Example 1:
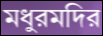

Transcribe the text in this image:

মধুরমদির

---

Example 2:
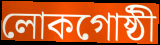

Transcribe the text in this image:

লোকগোষ্ঠী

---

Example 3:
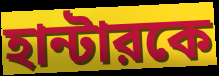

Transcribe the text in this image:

হান্টারকে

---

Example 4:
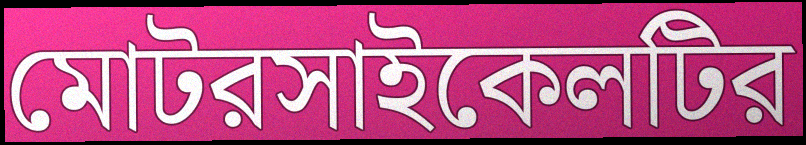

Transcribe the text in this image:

মোটরসাইকেলটির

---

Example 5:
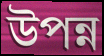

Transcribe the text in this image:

উপন্ন